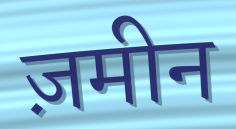
ज़मीन